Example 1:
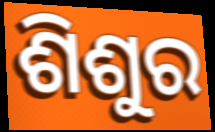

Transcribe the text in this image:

ଶିଶୁର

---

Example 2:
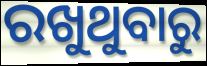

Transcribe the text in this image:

ରଖୁଥୁବାରୁ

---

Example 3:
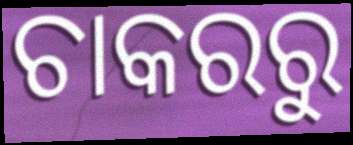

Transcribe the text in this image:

ଚାକରରୁ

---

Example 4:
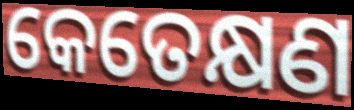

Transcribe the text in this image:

କେତେକ୍ଷଣ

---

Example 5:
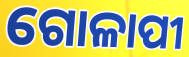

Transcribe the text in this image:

ଗୋଳାପୀ